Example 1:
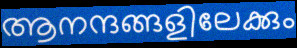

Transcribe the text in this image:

ആനന്ദങ്ങളിലേക്കും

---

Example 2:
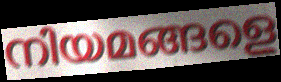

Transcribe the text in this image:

നിയമങ്ങളെ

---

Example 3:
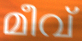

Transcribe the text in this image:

മീവ്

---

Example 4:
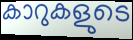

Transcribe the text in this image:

കാറുകളുടെ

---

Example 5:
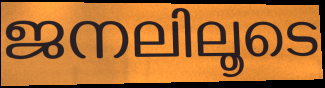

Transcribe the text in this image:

ജനലിലൂടെ